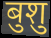
बुशु